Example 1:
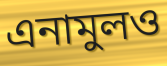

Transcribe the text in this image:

এনামুলও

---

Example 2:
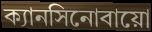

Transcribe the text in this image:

ক্যানসিনোবায়ো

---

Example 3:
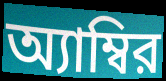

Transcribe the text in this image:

অ্যাম্বির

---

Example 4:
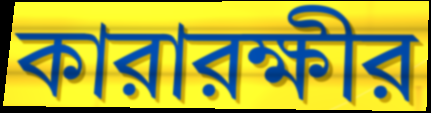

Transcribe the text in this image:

কারারক্ষীর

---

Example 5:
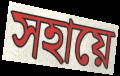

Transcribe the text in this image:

সহায়ে